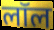
लॉल